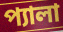
প্যালা